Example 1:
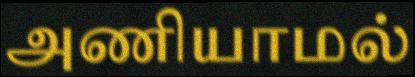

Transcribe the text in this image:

அணியாமல்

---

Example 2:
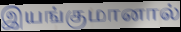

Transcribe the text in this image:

இயங்குமானால்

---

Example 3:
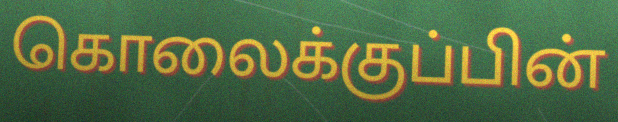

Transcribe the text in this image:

கொலைக்குப்பின்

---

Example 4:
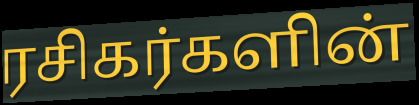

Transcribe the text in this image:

ரசிகர்களின்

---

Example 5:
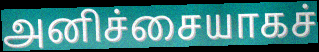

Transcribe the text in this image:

அனிச்சையாகச்